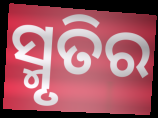
ସ୍ମୃତିର